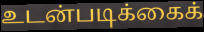
உடன்படிக்கைக்